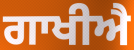
ਗਾਖੀਐ